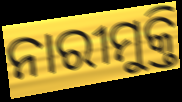
ନାରୀମୁକ୍ତି